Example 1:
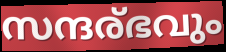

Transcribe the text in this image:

സന്ദര്ഭവും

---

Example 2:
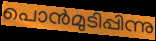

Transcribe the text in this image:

പൊൻമുടിപ്പിന്നു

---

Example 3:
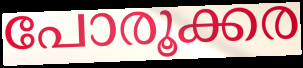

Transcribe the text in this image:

പോരൂക്കര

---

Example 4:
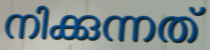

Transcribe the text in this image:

നിക്കുന്നത്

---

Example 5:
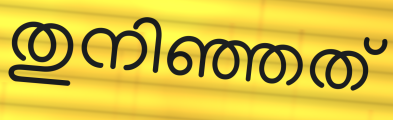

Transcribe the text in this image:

തുനിഞ്ഞത്